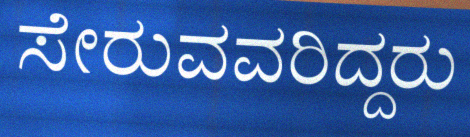
ಸೇರುವವರಿದ್ದರು